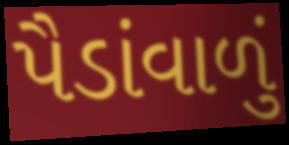
પૈડાંવાળું